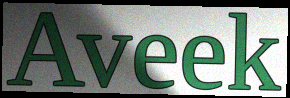
Aveek